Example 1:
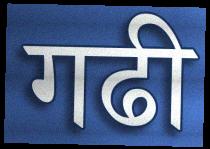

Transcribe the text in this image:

गढी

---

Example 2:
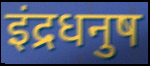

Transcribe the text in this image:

इंद्रधनुष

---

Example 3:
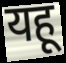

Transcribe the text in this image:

यहू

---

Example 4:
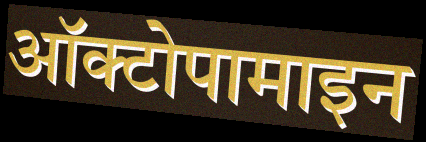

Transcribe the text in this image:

ऑक्टोपामाइन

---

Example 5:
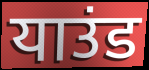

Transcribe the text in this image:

याउंड